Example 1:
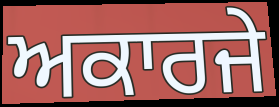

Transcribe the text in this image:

ਅਕਾਰਜੇ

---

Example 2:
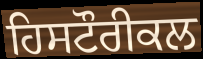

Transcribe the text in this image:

ਹਿਸਟੌਰੀਕਲ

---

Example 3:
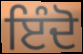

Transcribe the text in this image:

ਇੰਦੋ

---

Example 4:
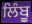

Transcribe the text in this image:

ਲਿੰਬੂ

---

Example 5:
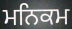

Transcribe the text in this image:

ਮਨਿਕਮ